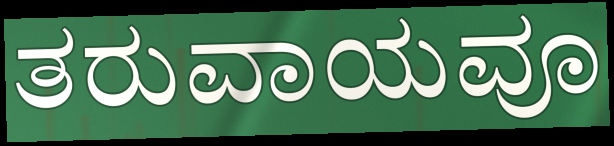
ತರುವಾಯವೂ